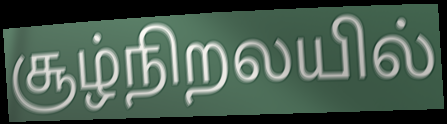
சூழ்நிறலயில்